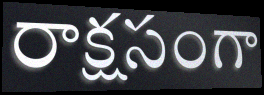
రాక్షసంగా